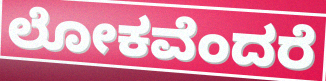
ಲೋಕವೆಂದರೆ